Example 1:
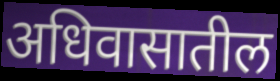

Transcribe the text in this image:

अधिवासातील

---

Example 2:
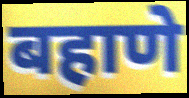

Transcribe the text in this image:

बहाणे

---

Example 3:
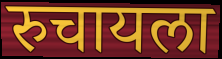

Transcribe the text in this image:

रुचायला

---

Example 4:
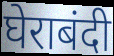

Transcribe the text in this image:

घेराबंदी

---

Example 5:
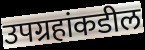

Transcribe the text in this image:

उपग्रहांकडील